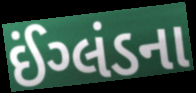
ઈંગ્લંડના